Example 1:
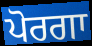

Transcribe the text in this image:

ਪੋਰਗਾ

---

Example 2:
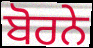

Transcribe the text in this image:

ਬੋਰਨੇ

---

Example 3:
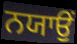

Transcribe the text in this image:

ਨਯਾਉਂ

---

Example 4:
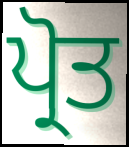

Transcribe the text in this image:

ਪ੍ਰੋਤ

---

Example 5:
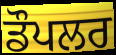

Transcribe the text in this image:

ਡੌਪਲਰ